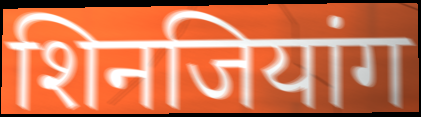
शिनजियांग